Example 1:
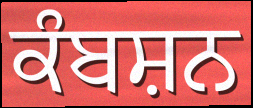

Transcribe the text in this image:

ਕੰਬਸ਼ਨ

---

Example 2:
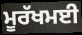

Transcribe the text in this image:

ਮੂਰੱਖਮਈ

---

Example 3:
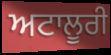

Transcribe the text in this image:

ਅਟਾਲੂਰੀ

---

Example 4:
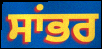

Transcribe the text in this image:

ਸਾਂਭਰ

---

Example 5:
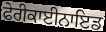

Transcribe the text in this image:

ਫੇਰੀਕਾਈਨਾਇਡ